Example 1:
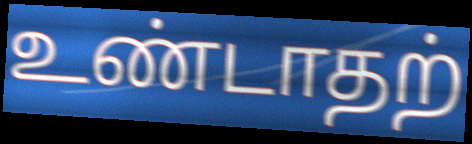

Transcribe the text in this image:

உண்டாதற்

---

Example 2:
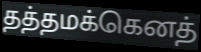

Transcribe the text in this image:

தத்தமக்கெனத்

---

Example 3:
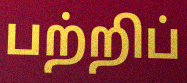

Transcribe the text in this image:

பற்றிப்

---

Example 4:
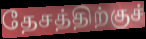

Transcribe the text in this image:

தேசத்திற்குச்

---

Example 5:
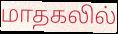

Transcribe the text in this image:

மாதகலில்